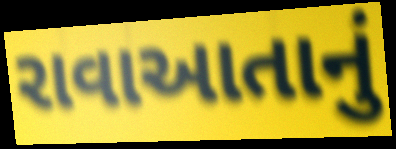
રાવાઆતાનું